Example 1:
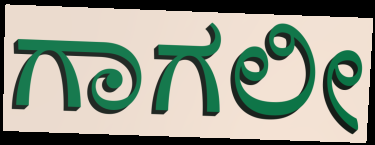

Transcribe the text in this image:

ಗಾಗಲೀ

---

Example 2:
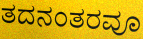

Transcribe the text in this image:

ತದನಂತರವೂ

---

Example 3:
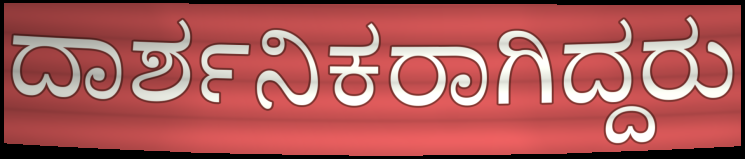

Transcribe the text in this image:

ದಾರ್ಶನಿಕರಾಗಿದ್ದರು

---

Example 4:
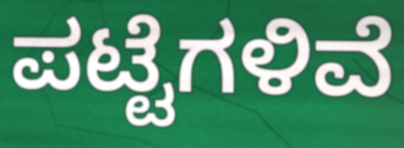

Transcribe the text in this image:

ಪಟ್ಟೆಗಳಿವೆ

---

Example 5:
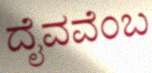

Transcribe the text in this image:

ದೈವವೆಂಬ